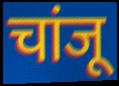
चांजू